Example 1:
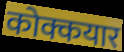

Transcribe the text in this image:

कोक्कयार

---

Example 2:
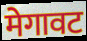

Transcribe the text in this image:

मेगावट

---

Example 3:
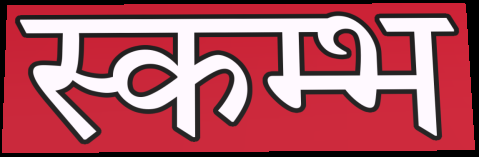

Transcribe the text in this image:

स्कम्भ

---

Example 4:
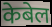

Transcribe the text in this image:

केबेल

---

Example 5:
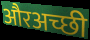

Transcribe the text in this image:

औरअच्छी